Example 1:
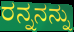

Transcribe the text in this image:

ರನ್ನನನ್ನು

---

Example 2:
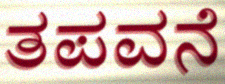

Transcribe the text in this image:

ತಪವನೆ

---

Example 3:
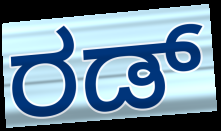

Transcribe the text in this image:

ರಡ್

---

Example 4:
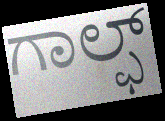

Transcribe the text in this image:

ಗಾಲ್ಫ್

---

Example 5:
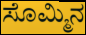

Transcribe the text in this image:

ಸೊಮ್ಮಿನ